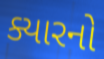
ક્યારનો